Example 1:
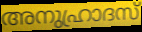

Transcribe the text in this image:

അനുഹ്രാദസ്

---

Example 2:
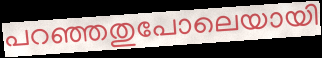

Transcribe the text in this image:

പറഞ്ഞതുപോലെയായി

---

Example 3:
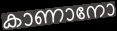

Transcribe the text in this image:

കാണാനോ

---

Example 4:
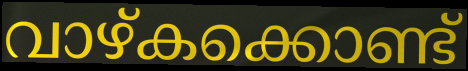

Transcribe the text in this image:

വാഴ്കക്കൊണ്ട്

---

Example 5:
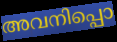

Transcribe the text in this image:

അവനിപ്പൊ